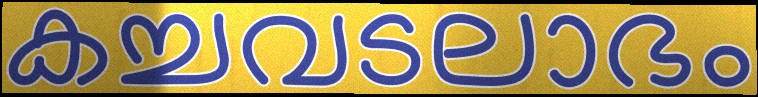
കച്ചവടലാഭം